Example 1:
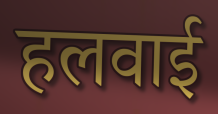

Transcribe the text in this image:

हलवाई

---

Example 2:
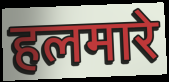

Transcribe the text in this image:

हलमारे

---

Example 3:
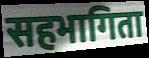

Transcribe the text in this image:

सहभागिता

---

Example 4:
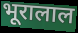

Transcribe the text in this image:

भूरालाल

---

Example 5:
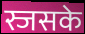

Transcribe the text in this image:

स्जसके